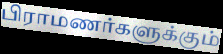
பிராமணர்களுக்கும்